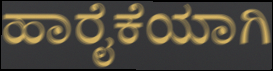
ಹಾರೈಕೆಯಾಗಿ